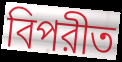
বিপরীত